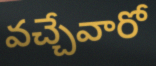
వచ్చేవారో